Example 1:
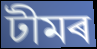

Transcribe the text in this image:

টীমৰ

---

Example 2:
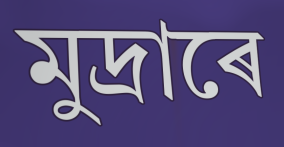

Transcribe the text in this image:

মুদ্ৰাৰে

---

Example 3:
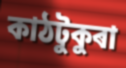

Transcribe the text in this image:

কাঠটুকুৰা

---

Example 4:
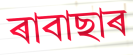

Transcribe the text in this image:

ৰাবাছাৰ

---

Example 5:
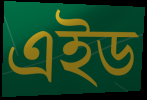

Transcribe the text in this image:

এইড